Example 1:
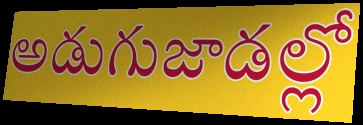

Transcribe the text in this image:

అడుగుజాడల్లో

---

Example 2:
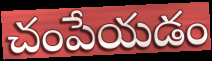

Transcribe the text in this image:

చంపేయడం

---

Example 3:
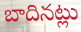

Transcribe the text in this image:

బాదినట్లు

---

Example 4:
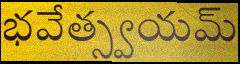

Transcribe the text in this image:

భవేత్స్వయమ్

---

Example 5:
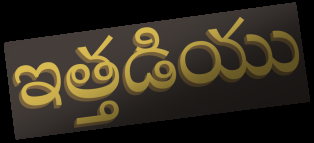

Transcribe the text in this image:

ఇత్తడియు